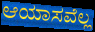
ಆಯಾಸವೆಲ್ಲ